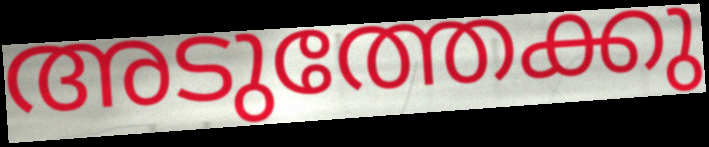
അടുത്തേക്കു